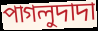
পাগলুদাদা